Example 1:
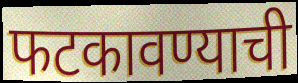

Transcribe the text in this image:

फटकावण्याची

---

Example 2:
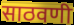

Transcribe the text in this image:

साठवणी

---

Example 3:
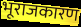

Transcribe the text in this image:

भूराजकारण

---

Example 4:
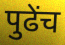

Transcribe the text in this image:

पुढेंच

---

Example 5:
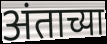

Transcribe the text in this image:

अंताच्या